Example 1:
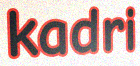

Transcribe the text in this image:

kadri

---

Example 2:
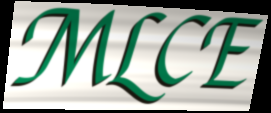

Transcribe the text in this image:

MLCE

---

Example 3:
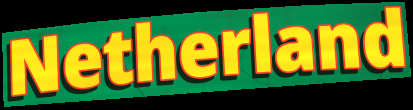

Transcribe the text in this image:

Netherland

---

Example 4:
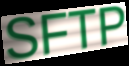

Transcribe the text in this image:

SFTP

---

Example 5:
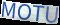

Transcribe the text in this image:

MOTU